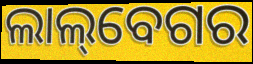
ଲାଲ୍‌ବେଗର